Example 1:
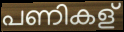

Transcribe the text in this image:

പണികള്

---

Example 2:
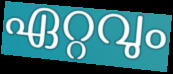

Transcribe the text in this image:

ഏറ്റവും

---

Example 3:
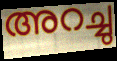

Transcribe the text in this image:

അറച്ചു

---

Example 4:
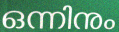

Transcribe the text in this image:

ഒന്നിനും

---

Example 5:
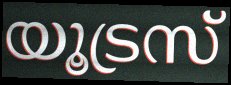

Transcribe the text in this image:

യൂട്രസ്